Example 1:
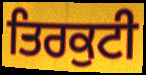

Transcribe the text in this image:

ਤਿਰਕੁਟੀ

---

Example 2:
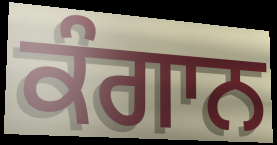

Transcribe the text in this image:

ਕੰਗਾਨ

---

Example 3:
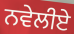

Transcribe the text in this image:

ਨਵੇਲੀਏ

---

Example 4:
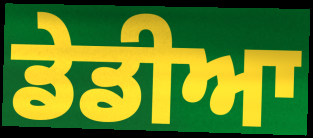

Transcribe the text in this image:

ਡੇਡੀਆ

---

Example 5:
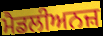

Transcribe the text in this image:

ਮੈਡਲੀਅਨਜ਼